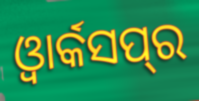
ଓ୍ୱାର୍କସପ୍‌ର